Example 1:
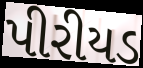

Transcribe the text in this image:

પીરીયડ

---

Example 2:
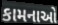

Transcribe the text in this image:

કામનાઓ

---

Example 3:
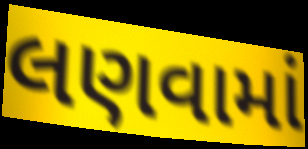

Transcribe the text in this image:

લણવામાં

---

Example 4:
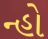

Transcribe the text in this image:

ન્હો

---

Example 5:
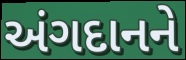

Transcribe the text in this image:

અંગદાનને